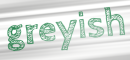
greyish